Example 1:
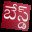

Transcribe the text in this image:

బేస్డ్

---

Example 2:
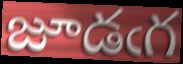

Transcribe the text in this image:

జూడఁగ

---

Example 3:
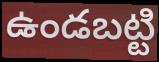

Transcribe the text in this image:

ఉండబట్టి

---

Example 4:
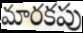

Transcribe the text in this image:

మారకపు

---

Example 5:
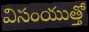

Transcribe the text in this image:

విసంయుత్తో